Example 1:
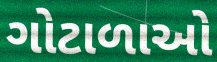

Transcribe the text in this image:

ગોટાળાઓ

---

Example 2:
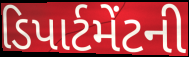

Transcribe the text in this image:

ડિપાર્ટમેંટની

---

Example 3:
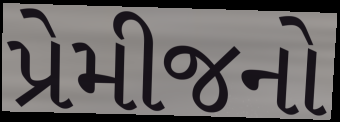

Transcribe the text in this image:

પ્રેમીજનો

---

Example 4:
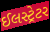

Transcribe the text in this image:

ઈલસ્ટ્રેટર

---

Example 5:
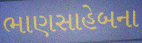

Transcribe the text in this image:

ભાણસાહેબના